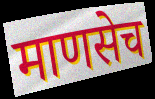
माणसेच